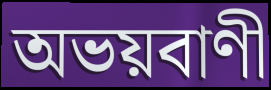
অভয়বাণী